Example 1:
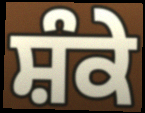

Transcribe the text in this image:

ਸ਼ੰਕੇ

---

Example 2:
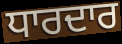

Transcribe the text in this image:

ਧਾਰਦਾਰ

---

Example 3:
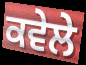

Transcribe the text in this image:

ਕਵੇਲੇ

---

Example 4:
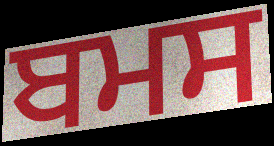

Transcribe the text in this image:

ਬਮਸ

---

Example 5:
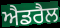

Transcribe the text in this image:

ਐਡਰੈਲ